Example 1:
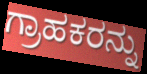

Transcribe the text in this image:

ಗ್ರಾಹಕರನ್ನು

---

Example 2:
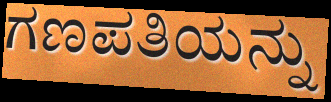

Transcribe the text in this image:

ಗಣಪತಿಯನ್ನು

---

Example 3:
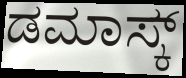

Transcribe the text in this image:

ಡಮಾಸ್ಕ್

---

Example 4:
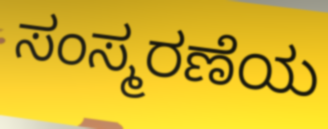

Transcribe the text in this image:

ಸಂಸ್ಮರಣೆಯ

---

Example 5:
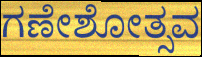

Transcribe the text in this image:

ಗಣೇಶೋತ್ಸವ